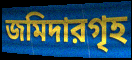
জমিদারগৃহ